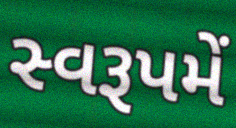
સ્વરૂપમેં